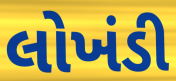
લોખંડી